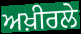
ਅਖ਼ੀਰਲੇ